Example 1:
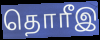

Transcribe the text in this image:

தொரீஇ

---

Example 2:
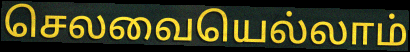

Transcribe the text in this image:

செலவையெல்லாம்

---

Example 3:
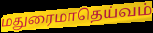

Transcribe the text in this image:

மதுரைமாதெய்வம்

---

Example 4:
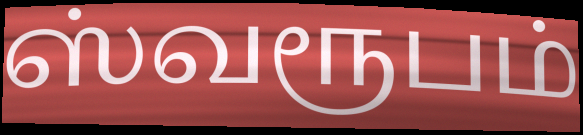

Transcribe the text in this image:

ஸ்வரூபம்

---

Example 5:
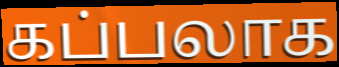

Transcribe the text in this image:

கப்பலாக